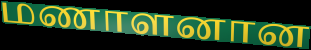
மணாளனான